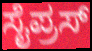
ಸೈಪ್ರಸ್